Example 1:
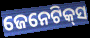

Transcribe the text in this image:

ଜେନେଟିକ୍‌ସ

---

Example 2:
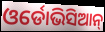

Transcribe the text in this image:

ଓର୍ଡୋଭିସିଆନ୍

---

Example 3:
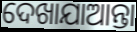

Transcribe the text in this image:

ଦେଖାଯାଆନ୍ତା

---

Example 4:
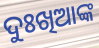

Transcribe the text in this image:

ଦୁଃଖିଆଙ୍କ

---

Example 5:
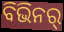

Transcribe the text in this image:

ବିଭିନର୍